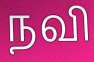
நவி